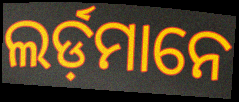
ଲର୍ଡ଼ମାନେ